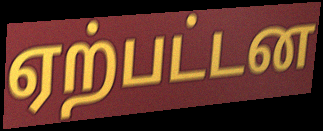
ஏற்பட்டன